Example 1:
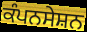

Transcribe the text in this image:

ਕੰਪਨਸੇਸ਼ਨ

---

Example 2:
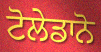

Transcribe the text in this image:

ਟੋਲੇਡਾਨੋ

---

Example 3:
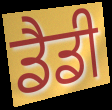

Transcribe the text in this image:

ਡੈਡੀ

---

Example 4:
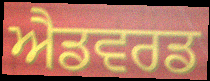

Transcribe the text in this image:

ਐਡਵਰਡ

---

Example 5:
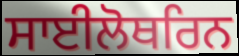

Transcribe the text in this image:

ਸਾਈਲੋਥਰਿਨ